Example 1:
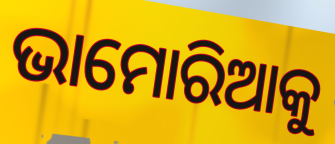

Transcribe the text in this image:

ଭାମୋରିଆକୁ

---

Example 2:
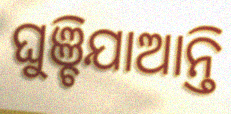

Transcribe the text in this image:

ଘୁଞ୍ଚିଯାଆନ୍ତି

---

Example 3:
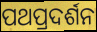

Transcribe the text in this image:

ପଥପ୍ରଦର୍ଶନ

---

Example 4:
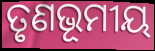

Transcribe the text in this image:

ତୃଣଭୂମୀୟ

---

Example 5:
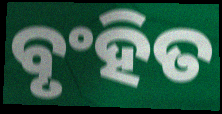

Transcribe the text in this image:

ବୃଂହିତ